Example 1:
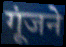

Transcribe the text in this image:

गूंजने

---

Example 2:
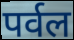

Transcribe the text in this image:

पर्वल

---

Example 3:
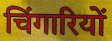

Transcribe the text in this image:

चिंगारियों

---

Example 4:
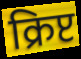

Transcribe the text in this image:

क्रिप्ट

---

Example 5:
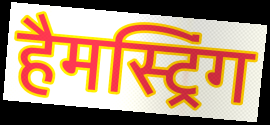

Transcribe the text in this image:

हैमस्ट्रिंग